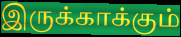
இருக்காக்கும்